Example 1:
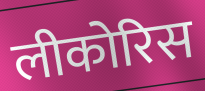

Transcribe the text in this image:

लीकोरिस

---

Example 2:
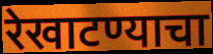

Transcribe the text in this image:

रेखाटण्याचा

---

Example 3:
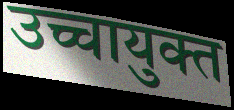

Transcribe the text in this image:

उच्‍चायुक्‍त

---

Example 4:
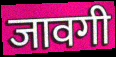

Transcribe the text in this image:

जावगी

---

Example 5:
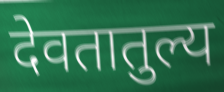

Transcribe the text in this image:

देवतातुल्य